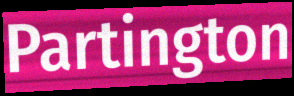
Partington